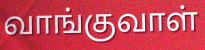
வாங்குவாள்